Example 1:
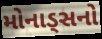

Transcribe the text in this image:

મોનાડ્સનો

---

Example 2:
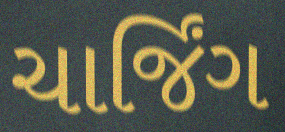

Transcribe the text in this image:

ચાર્જિંગ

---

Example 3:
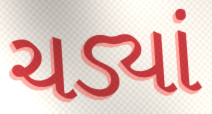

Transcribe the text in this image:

ચડ્યાં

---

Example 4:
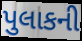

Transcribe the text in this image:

પુલાકની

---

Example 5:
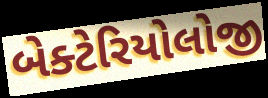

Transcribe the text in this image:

બેક્ટેરિયોલોજી